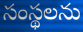
సంస్థలను